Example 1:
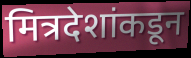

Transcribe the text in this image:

मित्रदेशांकडून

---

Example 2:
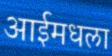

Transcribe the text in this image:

आईमधला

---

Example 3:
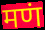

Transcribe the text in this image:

मणं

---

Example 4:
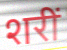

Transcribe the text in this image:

शरीं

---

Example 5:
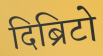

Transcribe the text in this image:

दिब्रिटो